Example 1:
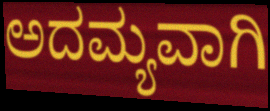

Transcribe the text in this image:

ಅದಮ್ಯವಾಗಿ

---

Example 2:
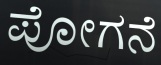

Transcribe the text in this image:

ಪೋಗನೆ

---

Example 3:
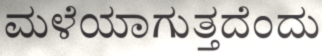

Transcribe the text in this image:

ಮಳೆಯಾಗುತ್ತದೆಂದು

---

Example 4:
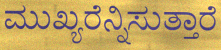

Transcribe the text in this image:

ಮುಖ್ಯರೆನ್ನಿಸುತ್ತಾರೆ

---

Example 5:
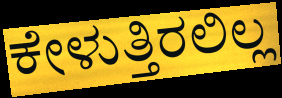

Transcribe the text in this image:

ಕೇಳುತ್ತಿರಲಿಲ್ಲ